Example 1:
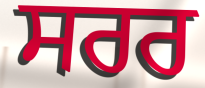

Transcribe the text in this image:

ਸਰਰ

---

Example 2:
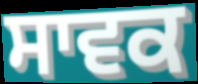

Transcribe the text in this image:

ਸਾਵਕ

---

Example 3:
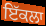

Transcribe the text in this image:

ਇੱਕਲਾ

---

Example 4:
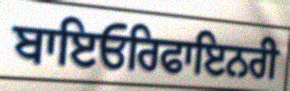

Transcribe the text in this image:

ਬਾਇਓਰਿਫਾਇਨਰੀ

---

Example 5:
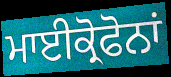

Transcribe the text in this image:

ਮਾਈਕ੍ਰੋਫੋਨਾਂ